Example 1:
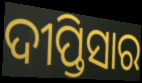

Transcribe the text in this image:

ଦୀପ୍ତିସାର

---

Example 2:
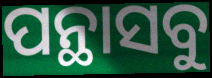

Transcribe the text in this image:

ପନ୍ଥାସବୁ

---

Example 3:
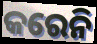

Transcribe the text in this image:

କରେନି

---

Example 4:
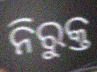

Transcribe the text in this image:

ନିରୁକ୍ତ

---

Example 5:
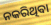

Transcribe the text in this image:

ନକରିଥିବା